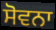
ਸੋਵਨਾ